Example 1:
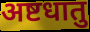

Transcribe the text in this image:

अष्टधातु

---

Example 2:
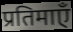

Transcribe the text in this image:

प्रतिमाएँ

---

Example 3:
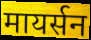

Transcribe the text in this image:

मायर्सन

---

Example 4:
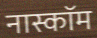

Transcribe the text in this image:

नास्कॉम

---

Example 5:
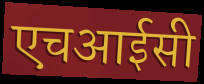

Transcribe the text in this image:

एचआईसी